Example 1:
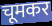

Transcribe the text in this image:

चूमकर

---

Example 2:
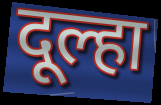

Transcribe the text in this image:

दूल्हा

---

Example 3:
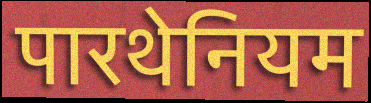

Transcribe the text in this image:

पारथेनियम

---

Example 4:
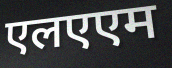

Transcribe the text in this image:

एलएएम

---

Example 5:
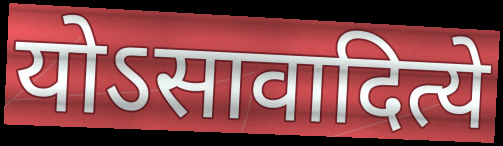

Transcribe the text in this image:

योऽसावादित्ये